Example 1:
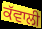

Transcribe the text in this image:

ਕੱਵਾਲੀ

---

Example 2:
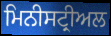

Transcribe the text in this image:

ਮਿਨੀਸਟ੍ਰੀਅਲ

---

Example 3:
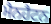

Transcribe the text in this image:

ਮੈਨਹੈਟਨ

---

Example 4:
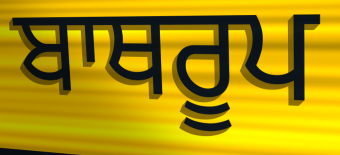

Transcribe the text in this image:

ਬਾਥਰੂਪ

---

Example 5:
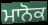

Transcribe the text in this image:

ਮਾਨੋਕ